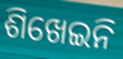
ଶିଖେଇନି